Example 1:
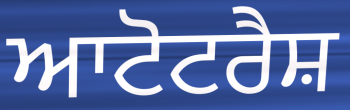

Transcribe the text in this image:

ਆਟੋਟਰੈਸ਼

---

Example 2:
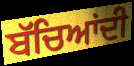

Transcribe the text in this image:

ਬੱਚਿਆਂਦੀ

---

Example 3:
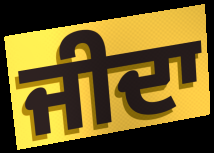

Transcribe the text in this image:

ਜੀਦਾ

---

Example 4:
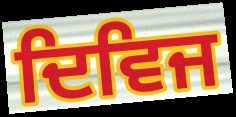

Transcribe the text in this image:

ਦਿਵਿਜ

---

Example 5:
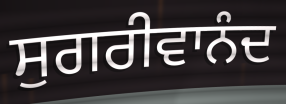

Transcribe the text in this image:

ਸੁਗਰੀਵਾਨੰਦ